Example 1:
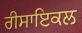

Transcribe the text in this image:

ਰੀਸਾਇਕਲ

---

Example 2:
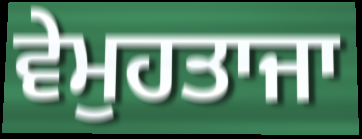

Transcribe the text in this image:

ਵੇਮੁਹਤਾਜਾ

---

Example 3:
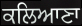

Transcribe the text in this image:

ਕਲਿਆਣਾ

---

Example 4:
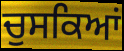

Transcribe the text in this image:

ਚੁਸਕਿਆਂ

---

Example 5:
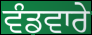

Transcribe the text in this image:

ਵੰਡਵਾਰੇ